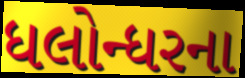
ધલોન્ધરના